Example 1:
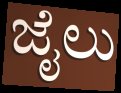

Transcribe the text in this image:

ಜೈಲು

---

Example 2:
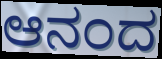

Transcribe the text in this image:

ಆನಂದ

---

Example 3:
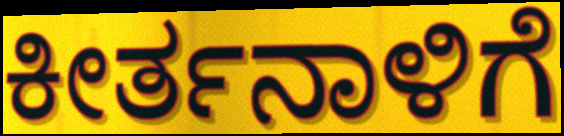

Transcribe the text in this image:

ಕೀರ್ತನಾಳಿಗೆ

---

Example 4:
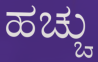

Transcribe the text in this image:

ಹಚ್ಚು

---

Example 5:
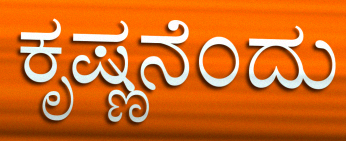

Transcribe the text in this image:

ಕೃಷ್ಣನೆಂದು